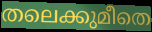
തലെക്കുമീതെ